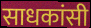
साधकांसी